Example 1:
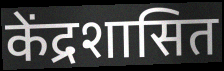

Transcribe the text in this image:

केंद्रशासित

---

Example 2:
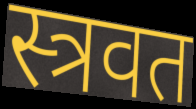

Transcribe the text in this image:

स्त्रवत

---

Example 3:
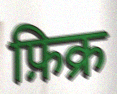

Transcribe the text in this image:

फ़िक्र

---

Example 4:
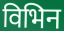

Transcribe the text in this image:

विभिन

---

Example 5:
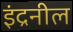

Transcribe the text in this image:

इंद्रनील